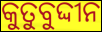
କୁତୁବୁଦ୍ଦୀନ